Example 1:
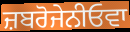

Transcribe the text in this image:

ਜ਼ਬਰੋਜੇਨੀਓਵਾ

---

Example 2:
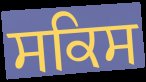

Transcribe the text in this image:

ਸਕਿਸ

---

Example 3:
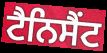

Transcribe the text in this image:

ਟੈਨਿਸੈਂਟ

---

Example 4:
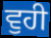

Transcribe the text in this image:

ਵੁਹੀ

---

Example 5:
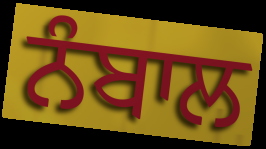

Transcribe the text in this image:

ਨੰਬਾਲ